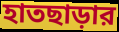
হাতছাড়ার